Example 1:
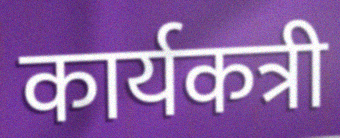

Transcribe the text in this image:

कार्यकत्री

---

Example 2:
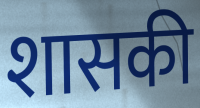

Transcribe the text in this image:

शासकी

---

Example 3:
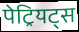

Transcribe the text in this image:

पेट्रियट्स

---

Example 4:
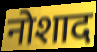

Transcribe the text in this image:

नोशाद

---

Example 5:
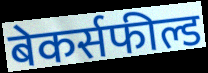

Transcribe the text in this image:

बेकर्सफील्ड